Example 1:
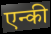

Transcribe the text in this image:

एन्की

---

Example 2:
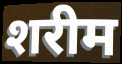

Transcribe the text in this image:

शरीम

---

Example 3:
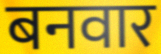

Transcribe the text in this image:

बनवार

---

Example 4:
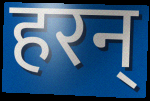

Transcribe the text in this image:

हरन्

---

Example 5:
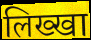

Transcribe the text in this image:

लिख्खा